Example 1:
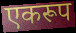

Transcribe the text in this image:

एकरूप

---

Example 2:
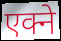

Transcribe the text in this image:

एक्ने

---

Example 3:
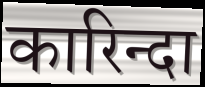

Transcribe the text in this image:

कारिन्दा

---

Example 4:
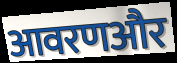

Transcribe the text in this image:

आवरणऔर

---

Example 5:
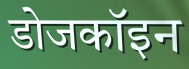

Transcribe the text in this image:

डोजकॉइन